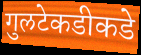
गुलटेकडीकडे